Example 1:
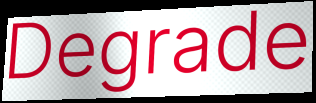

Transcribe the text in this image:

Degrade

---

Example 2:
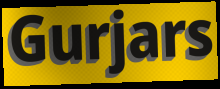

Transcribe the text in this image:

Gurjars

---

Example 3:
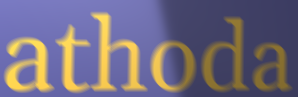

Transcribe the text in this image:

athoda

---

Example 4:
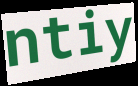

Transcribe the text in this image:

ntiy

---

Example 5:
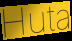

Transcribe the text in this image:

Huta